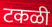
टकळी